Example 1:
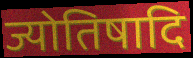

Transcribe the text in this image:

ज्योतिषादि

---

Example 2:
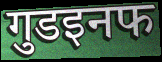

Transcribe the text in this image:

गुडइनफ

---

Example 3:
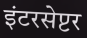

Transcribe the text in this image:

इंटरसेप्टर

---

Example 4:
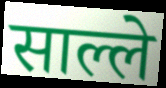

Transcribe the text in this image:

साल्ले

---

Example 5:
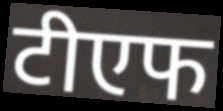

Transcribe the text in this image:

टीएफ